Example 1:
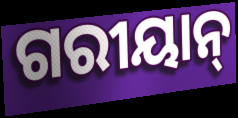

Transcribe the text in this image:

ଗରୀୟାନ୍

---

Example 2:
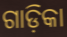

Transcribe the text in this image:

ଗାଡ଼ିକା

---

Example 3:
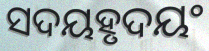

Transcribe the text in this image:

ସଦୟହୃଦୟଂ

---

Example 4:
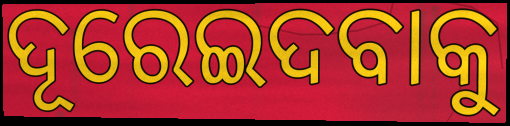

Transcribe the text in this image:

ଦୂରେଇଦବାକୁ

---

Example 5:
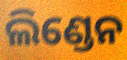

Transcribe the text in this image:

ଲିଣ୍ଡେନ